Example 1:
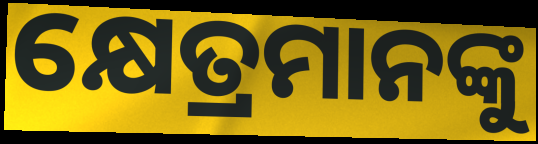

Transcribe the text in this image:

କ୍ଷେତ୍ରମାନଙ୍କୁ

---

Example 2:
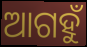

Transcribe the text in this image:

ଆଗହୁଁ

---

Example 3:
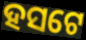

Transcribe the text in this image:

ହସଟେ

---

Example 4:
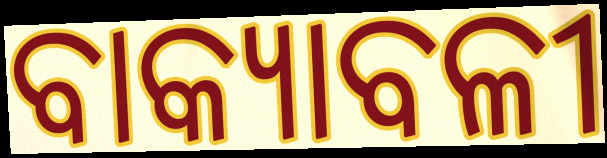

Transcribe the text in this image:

ବାକ୍ୟାବଳୀ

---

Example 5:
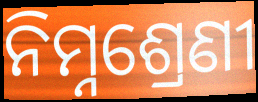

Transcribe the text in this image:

ନିମ୍ନଶ୍ରେଣୀ